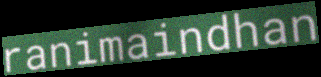
ranimaindhan